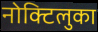
नोक्टिलुका